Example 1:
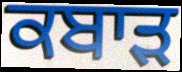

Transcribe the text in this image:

ਕਬਾੜ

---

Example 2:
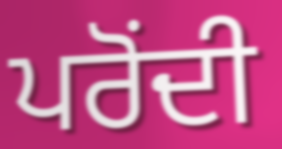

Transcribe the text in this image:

ਪਰੋਂਦੀ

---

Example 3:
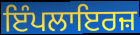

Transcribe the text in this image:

ਇੰਪਲਾਇਰਜ਼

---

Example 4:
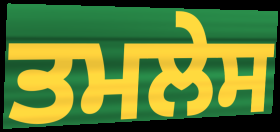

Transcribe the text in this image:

ਤਮਲੇਸ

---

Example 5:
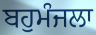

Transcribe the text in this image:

ਬਹੁਮੰਜਲਾ